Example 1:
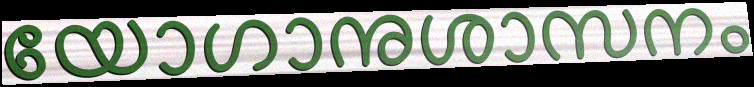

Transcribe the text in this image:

യോഗാനുശാസനം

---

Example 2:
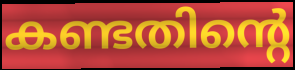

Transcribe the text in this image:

കണ്ടതിന്റെ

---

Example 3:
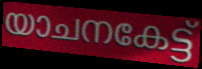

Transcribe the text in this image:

യാചനകേട്ട്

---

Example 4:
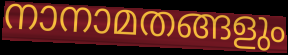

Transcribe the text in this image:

നാനാമതങ്ങളും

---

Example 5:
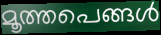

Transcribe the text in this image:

മൂത്തപെങ്ങൾ